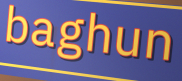
baghun